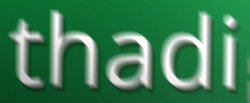
thadi